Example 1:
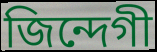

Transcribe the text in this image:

জিন্দেগী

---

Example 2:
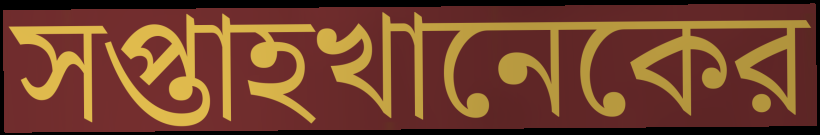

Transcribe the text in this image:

সপ্তাহখানেকের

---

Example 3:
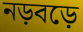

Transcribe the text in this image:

নড়বড়ে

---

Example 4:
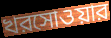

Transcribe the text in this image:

খরসোওয়ার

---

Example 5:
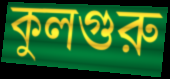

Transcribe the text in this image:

কুলগুরু